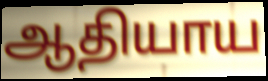
ஆதியாய